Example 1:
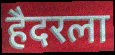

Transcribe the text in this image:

हैदरला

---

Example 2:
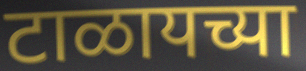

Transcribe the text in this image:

टाळायच्या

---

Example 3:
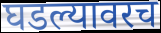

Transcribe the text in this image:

घडल्यावरच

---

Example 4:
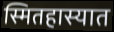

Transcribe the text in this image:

स्मितहास्यात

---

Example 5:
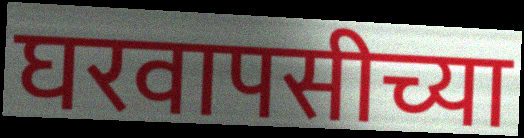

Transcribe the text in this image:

घरवापसीच्या